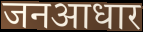
जनआधार